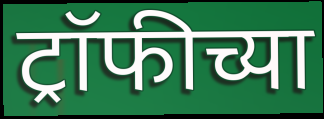
ट्रॉफीच्या